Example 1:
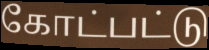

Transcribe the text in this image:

கோட்பட்டு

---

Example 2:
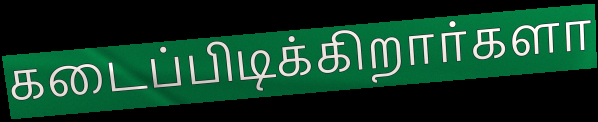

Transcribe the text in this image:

கடைப்பிடிக்கிறார்களா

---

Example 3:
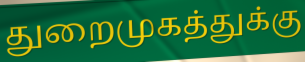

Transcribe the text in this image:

துறைமுகத்துக்கு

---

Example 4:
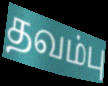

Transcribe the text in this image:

தவம்பு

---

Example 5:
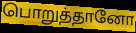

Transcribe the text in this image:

பொறுத்தானோ